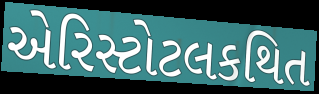
એરિસ્ટોટલકથિત